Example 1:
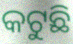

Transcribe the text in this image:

କଟୁଛି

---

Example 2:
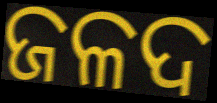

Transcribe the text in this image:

ଜଳଦ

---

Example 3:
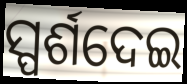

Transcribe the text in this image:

ସ୍ପର୍ଶଦେଇ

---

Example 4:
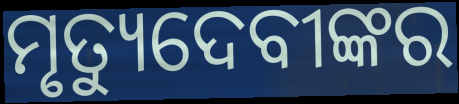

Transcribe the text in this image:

ମୃତ୍ୟୁଦେବୀଙ୍କର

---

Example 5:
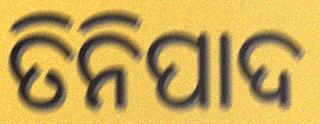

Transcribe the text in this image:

ତିନିପାଦ